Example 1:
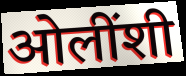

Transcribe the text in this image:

ओलींशी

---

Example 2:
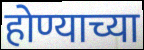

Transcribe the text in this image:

होण्याच्या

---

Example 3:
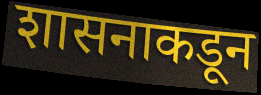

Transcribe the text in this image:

शासनाकडून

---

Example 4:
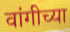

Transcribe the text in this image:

वांगीच्या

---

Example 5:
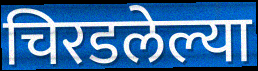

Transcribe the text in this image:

चिरडलेल्या